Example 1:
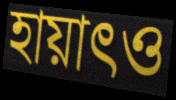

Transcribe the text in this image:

হায়াৎও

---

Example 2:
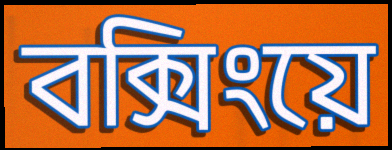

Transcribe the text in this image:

বক্সিংয়ে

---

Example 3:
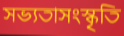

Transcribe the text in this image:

সভ্যতাসংস্কৃতি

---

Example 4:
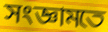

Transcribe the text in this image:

সংজ্ঞামতে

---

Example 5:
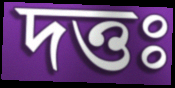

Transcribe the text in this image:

দত্তঃ